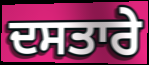
ਦਸਤਾਰੇ